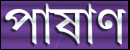
পাষাণ